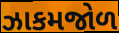
ઝાકમજોળ